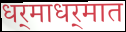
धर्माधर्मात